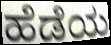
ಹೆಡೆಯ